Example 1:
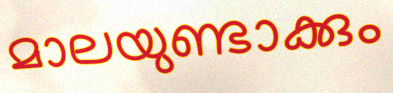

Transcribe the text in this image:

മാലയുണ്ടാക്കും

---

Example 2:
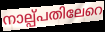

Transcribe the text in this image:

നാല്പ്പതിലേറെ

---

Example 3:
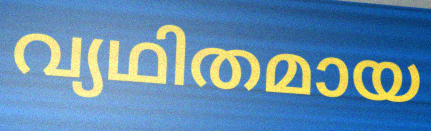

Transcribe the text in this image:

വ്യഥിതമായ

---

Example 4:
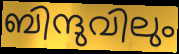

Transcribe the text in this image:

ബിന്ദുവിലും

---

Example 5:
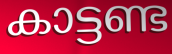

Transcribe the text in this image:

കാട്ടണ്ട